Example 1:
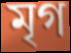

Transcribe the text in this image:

মৃগ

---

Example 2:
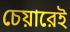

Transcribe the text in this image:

চেয়ারেই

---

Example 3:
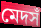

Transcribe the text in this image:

মেদসঁ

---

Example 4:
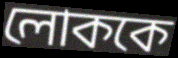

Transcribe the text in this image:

লোককে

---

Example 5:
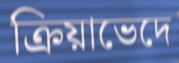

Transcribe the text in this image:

ক্রিয়াভেদে